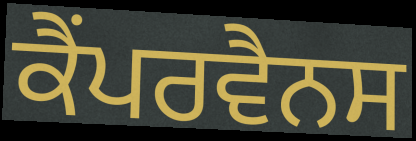
ਕੈਂਪਰਵੈਨਸ